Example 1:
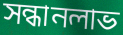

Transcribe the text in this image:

সন্ধানলাভ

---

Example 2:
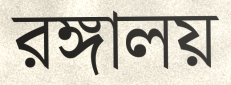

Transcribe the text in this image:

রঙ্গালয়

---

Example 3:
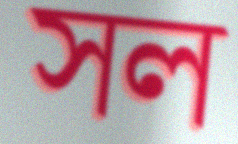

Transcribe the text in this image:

সল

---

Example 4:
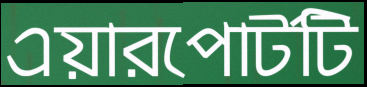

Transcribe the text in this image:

এয়ারপোর্টটি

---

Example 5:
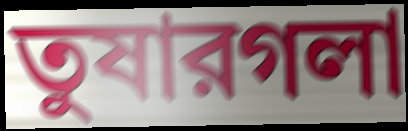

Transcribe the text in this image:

তুষারগলা